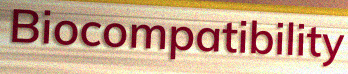
Biocompatibility